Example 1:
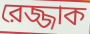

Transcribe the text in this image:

রেজ্জাক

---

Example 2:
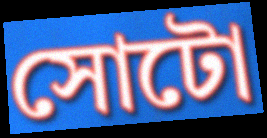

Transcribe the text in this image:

সোটো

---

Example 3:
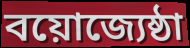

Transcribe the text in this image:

বয়োজ্যেষ্ঠা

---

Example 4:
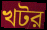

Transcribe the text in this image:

খটর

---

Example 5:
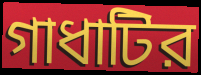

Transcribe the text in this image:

গাধাটির